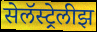
सेलॅस्ट्रेलीझ